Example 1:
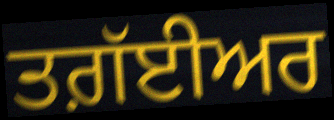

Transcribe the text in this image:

ਤਗ਼ੱਈਅਰ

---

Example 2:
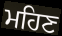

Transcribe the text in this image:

ਮਹਿਣ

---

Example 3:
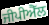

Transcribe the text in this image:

ਜੀਪੀਐੱਲ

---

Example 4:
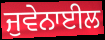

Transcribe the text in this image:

ਜੁਵੇਨਾਈਲ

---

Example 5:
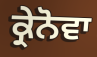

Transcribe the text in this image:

ਕ੍ਰੇਨੋਵਾ